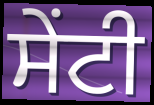
ਸੇਂਟੀ